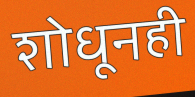
शोधूनही